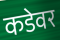
कडेवर